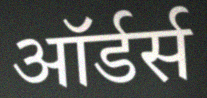
ऑर्डर्स